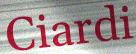
Ciardi